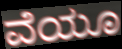
ವೆಯೂ